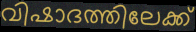
വിഷാദത്തിലേക്ക്